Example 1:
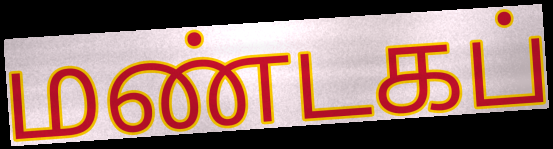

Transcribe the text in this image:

மண்டகப்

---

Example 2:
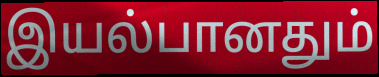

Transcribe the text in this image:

இயல்பானதும்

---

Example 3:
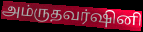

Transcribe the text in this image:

அம்ருதவர்ஷினி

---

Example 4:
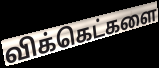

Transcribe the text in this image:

விக்கெட்களை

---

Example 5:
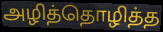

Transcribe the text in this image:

அழித்தொழித்த